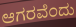
ಆಗರವೆಂದು